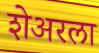
शेअरला